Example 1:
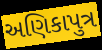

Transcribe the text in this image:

અણિકાપુત્ર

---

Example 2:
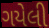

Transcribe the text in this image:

ગયેલી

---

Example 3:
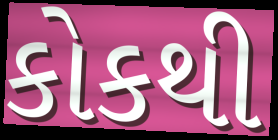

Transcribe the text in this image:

કોકથી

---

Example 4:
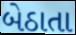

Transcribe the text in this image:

બેઠાતા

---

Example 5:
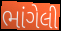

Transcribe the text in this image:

ભાંગેલી